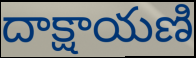
దాక్షాయణి